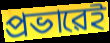
প্ৰভাৱেই